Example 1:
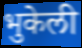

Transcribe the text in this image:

भुकेली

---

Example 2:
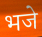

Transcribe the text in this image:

भजे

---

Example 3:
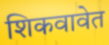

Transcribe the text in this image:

शिकवावेत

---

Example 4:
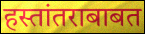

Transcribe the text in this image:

हस्तांतराबाबत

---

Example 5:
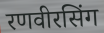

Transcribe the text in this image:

रणवीरसिंग